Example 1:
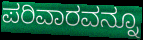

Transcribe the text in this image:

ಪರಿವಾರವನ್ನೂ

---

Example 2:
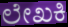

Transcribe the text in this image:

ಲೇಖಕಿ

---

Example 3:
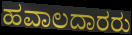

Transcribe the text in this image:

ಹವಾಲದಾರರು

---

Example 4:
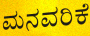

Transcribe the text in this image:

ಮನವರಿಕೆ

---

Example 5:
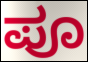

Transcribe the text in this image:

ಪೂ